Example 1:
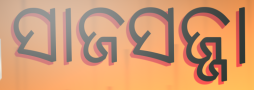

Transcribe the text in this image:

ସାଜସଜ୍ଜା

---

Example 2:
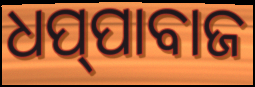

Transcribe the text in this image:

ଧପ୍‌ପାବାଜ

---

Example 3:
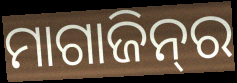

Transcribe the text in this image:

ମାଗାଜିନ୍‍ର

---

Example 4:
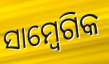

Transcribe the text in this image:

ସାମ୍ବେଗିକ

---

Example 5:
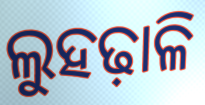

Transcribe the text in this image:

ଲୁହଢ଼ାଳି